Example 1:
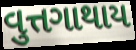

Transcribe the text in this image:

વુત્તગાથાય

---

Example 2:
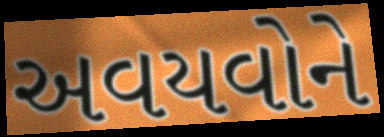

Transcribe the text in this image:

અવયવોને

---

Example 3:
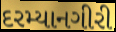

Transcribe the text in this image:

દરમ્યાનગીરી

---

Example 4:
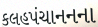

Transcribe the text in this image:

કલહપંચાનનના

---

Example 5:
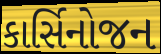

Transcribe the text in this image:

કાર્સિનોજન